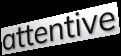
attentive